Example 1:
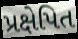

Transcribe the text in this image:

પ્રક્ષેપિત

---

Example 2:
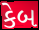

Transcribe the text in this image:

કેબ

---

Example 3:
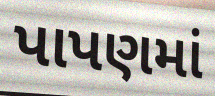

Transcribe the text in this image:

પાપણમાં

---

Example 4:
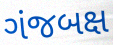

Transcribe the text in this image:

ગંજબક્ષ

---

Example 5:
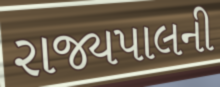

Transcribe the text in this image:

રાજ્યપાલની